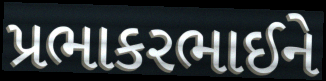
પ્રભાકરભાઈને